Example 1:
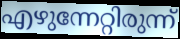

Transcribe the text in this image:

എഴുന്നേറ്റിരുന്ന്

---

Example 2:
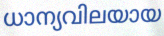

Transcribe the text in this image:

ധാന്യവിലയായ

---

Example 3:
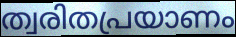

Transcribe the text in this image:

ത്വരിതപ്രയാണം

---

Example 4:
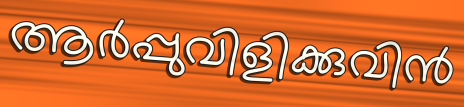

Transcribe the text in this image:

ആർപ്പുവിളിക്കുവിൻ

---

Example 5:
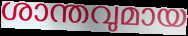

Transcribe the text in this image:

ശാന്തവുമായ